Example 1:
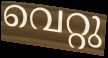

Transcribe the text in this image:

വെറ്റു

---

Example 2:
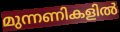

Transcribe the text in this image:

മുന്നണികളിൽ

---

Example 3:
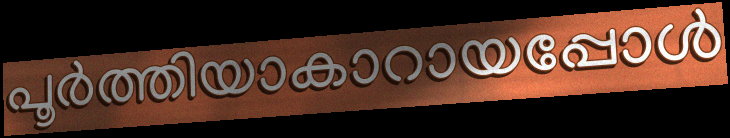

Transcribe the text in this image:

പൂർത്തിയാകാറായപ്പോൾ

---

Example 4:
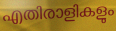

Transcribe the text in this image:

എതിരാളികളും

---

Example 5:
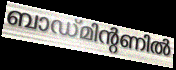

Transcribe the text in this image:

ബാഡ്മിന്റണിൽ